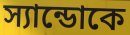
স্যান্ডোকে